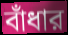
বাঁধার